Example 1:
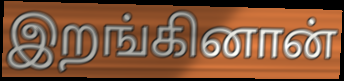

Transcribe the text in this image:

இறங்கினான்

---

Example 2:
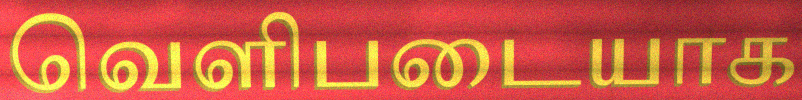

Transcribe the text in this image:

வெளிபடையாக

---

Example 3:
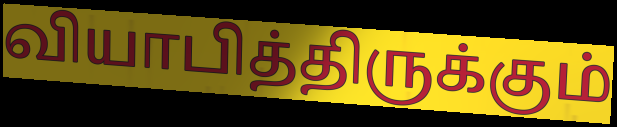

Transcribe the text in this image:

வியாபித்திருக்கும்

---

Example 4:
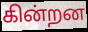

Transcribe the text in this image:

கின்றன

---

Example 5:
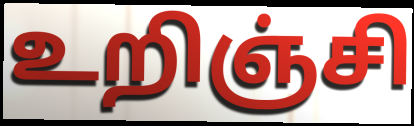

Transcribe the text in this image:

உறிஞ்சி